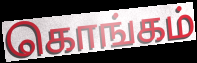
கொங்கம்